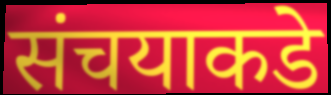
संचयाकडे